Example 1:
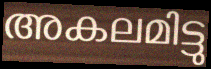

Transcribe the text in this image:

അകലമിട്ടു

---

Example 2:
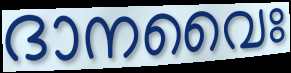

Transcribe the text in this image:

ദാനവൈഃ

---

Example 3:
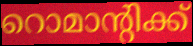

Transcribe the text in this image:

റൊമാന്റിക്ക്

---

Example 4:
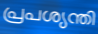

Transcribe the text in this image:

പ്രപശ്യന്തി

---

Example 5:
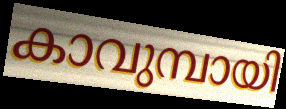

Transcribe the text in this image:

കാവുമ്പായി